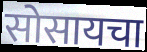
सोसायचा